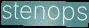
stenops